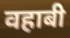
वहाबी